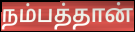
நம்பத்தான்